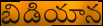
బిడియాన